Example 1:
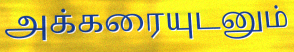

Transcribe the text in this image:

அக்கரையுடனும்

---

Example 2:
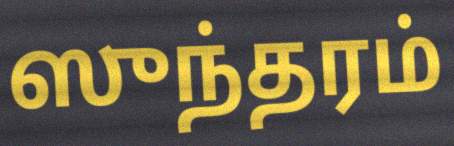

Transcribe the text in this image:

ஸுந்தரம்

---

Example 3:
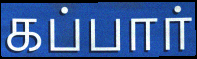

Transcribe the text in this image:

கப்பார்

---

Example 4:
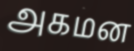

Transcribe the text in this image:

அகமன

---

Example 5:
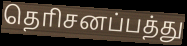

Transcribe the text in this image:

தெரிசனப்பத்து